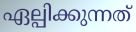
ഏല്പിക്കുന്നത്